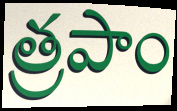
త్రపాం